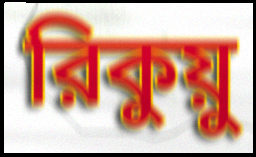
রিকুয়ু